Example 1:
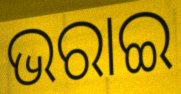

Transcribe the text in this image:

ଭରାଇ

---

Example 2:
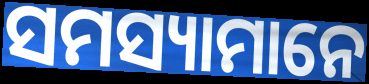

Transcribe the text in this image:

ସମସ୍ୟାମାନେ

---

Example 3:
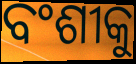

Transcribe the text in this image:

ବଂଶୀକୁ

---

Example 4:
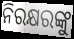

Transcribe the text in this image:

ନିରକ୍ଷରଙ୍କୁ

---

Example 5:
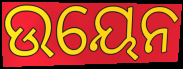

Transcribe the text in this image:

ଉୟେନ